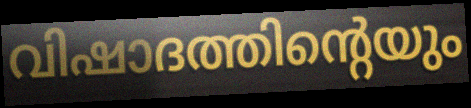
വിഷാദത്തിന്റെയും